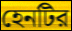
হেনটির